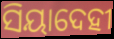
ସିୟାଦେହୀ